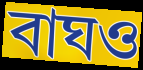
বাঘও